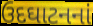
ઉદઘાટનનાં